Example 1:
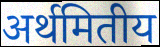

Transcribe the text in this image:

अर्थमितीय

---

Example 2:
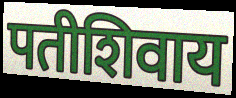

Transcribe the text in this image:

पतीशिवाय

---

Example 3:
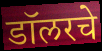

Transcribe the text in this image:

डॉलरचे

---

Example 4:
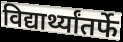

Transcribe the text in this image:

विद्यार्थ्यांतर्फे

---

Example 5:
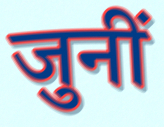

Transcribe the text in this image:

जुनीं